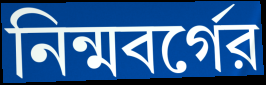
নিন্মবর্গের